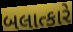
બલાત્કારે